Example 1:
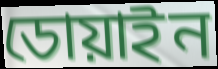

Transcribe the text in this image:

ডোয়াইন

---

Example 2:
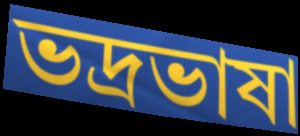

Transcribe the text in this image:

ভদ্রভাষা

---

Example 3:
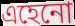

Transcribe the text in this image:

এহেনো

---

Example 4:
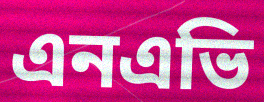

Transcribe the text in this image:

এনএভি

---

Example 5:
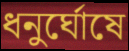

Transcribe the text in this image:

ধনুর্ঘোষে